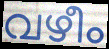
വഴീം